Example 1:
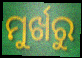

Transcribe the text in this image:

ମୁର୍ଖରୁ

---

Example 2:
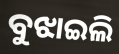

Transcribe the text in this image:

ବୁଝାଇଲି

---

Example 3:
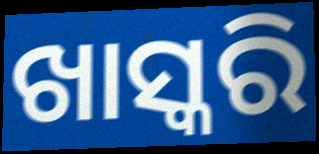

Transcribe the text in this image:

ଖାସ୍କରି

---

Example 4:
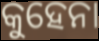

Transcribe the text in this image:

କୁହେନା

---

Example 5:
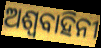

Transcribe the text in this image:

ଅଶ୍ୱବାହିନୀ